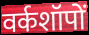
वर्कशॉपों